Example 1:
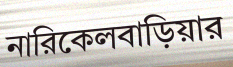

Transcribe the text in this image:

নারিকেলবাড়িয়ার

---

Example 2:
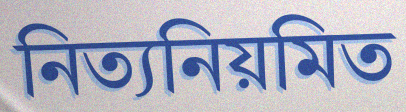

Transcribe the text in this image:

নিত্যনিয়মিত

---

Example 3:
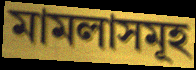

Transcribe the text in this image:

মামলাসমূহ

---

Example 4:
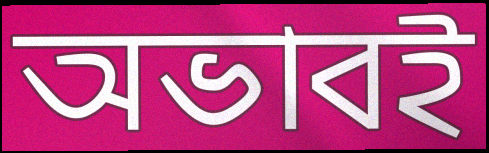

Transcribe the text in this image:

অভাবই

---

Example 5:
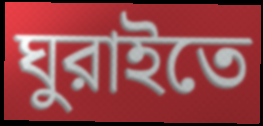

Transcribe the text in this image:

ঘুরাইতে